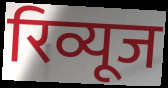
रिव्यूज